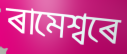
ৰামেশ্বৰে